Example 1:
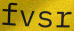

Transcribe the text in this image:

fvsr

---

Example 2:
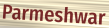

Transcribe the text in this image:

Parmeshwar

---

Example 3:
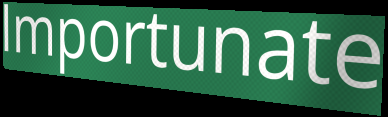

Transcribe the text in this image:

Importunate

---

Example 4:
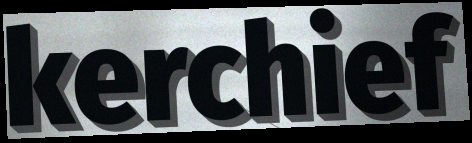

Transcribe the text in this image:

kerchief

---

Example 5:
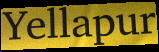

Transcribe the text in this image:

Yellapur